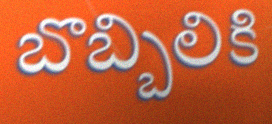
బొబ్బిలికి